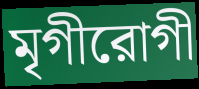
মৃগীরোগী